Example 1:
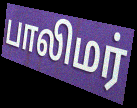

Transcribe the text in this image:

பாலிமர்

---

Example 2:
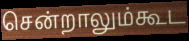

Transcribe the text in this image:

சென்றாலும்கூட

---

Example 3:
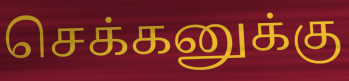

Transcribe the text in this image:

செக்கனுக்கு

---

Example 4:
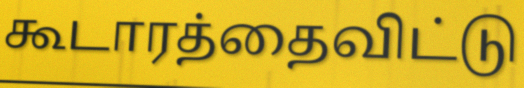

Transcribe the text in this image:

கூடாரத்தைவிட்டு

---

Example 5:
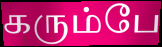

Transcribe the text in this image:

கரும்பே